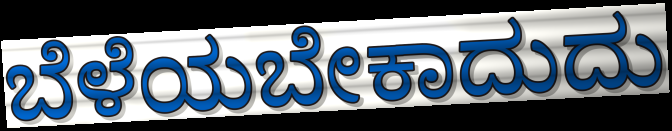
ಬೆಳೆಯಬೇಕಾದುದು